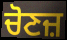
ਚੋਣਜ਼